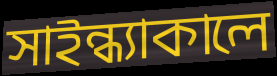
সাইন্ধ্যাকালে